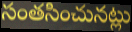
సంతసించునట్లు